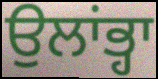
ਉਲਾਂਭ੍ਹਾ